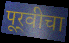
पूर्वीचा